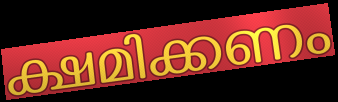
ക്ഷമിക്കണം